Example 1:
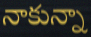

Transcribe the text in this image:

నాకున్నా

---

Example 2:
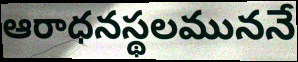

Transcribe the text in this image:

ఆరాధనస్థలముననే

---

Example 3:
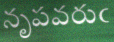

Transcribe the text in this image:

నృపవరుఁ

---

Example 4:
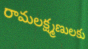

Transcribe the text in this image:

రామలక్ష్మణులకు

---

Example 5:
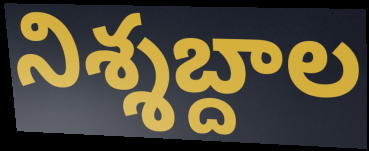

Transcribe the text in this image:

నిశ్శబ్దాల